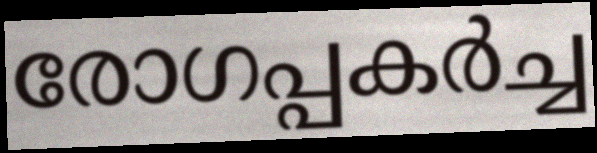
രോഗപ്പകർച്ച